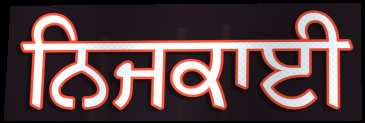
ਨਿਜਕਾਈ